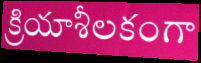
క్రియాశీలకంగా